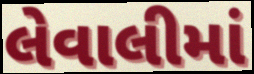
લેવાલીમાં